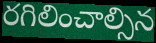
రగిలించాల్సిన